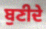
ਬੁਣੀਦੇ